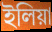
ইলিয়া